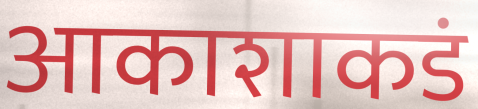
आकाशाकडं